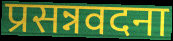
प्रसन्नवदना